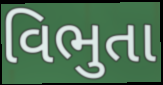
વિભુતા